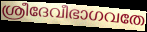
ശ്രീദേവീഭാഗവതേ